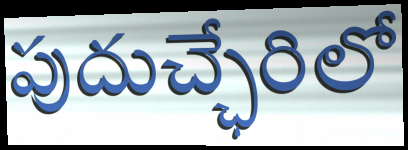
పుదుచ్ఛేరిలో